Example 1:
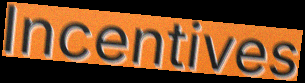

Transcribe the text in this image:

Incentives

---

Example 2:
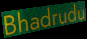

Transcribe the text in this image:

Bhadrudu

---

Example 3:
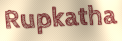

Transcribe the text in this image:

Rupkatha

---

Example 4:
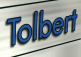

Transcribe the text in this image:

Tolbert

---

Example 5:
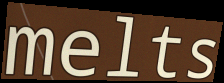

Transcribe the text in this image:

melts